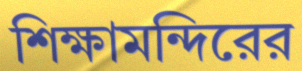
শিক্ষামন্দিরের